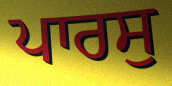
ਪਾਰਸੁ